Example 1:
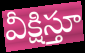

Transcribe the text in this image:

వీక్షిస్తూ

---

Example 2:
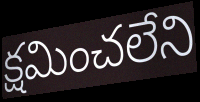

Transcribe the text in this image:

క్షమించలేని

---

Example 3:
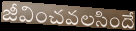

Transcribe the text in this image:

జీవించవలసిందే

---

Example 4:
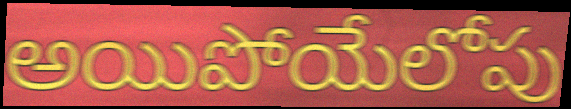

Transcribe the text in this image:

అయిపోయేలోపు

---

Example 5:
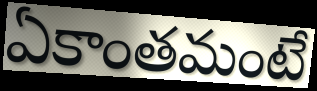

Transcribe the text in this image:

ఏకాంతమంటే